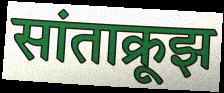
सांताक्रूझ